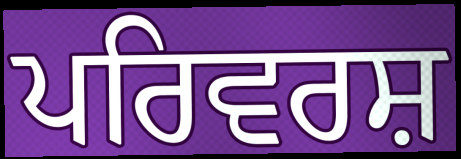
ਪਰਿਵਰਸ਼